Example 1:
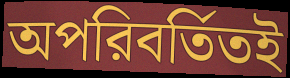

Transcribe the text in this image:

অপরিবর্তিতই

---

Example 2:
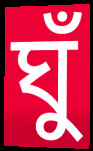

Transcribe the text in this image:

ঘুঁ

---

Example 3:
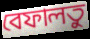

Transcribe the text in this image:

বেফালতু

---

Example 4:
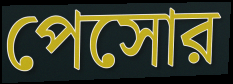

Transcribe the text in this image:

পেসোর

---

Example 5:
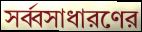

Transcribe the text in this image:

সর্ব্বসাধারণের